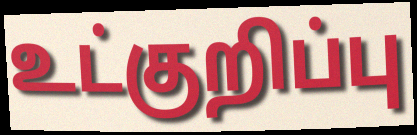
உட்குறிப்பு